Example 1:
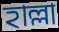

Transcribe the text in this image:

হাল্লা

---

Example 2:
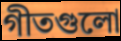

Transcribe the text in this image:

গীতগুলো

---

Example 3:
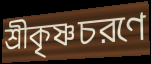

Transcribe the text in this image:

শ্রীকৃষ্ণচরণে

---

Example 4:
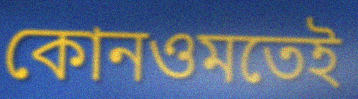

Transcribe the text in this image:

কোনওমতেই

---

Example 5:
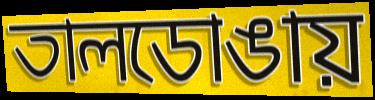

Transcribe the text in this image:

তালডোঙায়